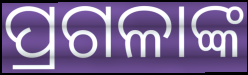
ପ୍ରଗଳାଙ୍କ